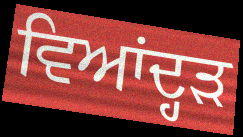
ਵਿਆਂਦ੍ਹੜ